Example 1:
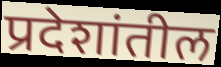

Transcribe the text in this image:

प्रदेशांतील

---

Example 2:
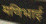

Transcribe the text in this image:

मणिभाई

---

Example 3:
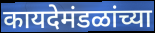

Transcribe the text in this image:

कायदेमंडळांच्या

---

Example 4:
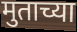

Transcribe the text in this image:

मुताच्या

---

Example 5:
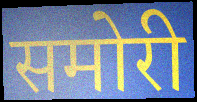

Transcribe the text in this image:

समोरी